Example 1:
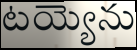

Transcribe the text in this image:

టయ్యెను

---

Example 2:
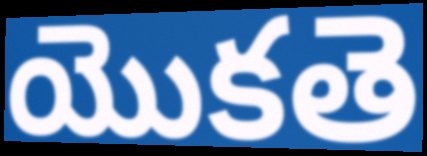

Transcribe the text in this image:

యొకతె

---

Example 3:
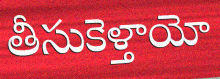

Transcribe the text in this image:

తీసుకెళ్తాయో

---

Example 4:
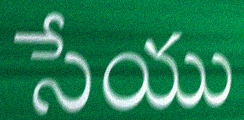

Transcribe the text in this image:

సేయు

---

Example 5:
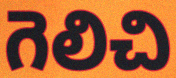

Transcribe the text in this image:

గెలిచి